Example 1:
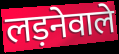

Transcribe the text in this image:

लड़नेवाले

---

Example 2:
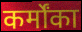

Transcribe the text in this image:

कर्मोंका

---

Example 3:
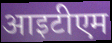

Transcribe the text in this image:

आइटीएम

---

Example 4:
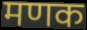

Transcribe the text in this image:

मणक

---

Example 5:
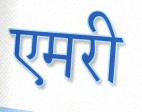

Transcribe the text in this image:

एमरी